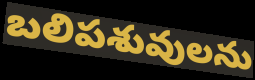
బలిపశువులను